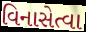
વિનાસેત્વા